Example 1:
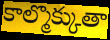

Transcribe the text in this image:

కాల్మొక్కుతా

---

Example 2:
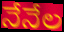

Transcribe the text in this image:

నేనేల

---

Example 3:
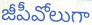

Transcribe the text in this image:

జీపీవోలుగా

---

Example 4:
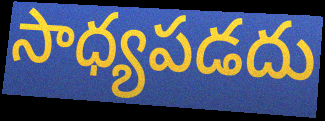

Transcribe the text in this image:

సాధ్యపడదు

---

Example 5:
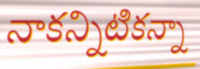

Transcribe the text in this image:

నాకన్నిటికన్నా